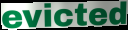
evicted